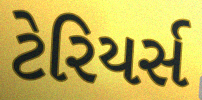
ટેરિયર્સ